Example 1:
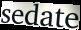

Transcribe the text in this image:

sedate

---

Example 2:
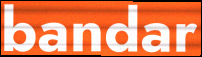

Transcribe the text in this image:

bandar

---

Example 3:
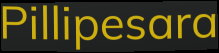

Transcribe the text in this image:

Pillipesara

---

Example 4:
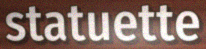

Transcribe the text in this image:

statuette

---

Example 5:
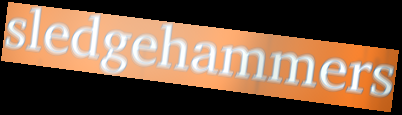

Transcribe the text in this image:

sledgehammers